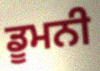
ਡੂਮਨੀ